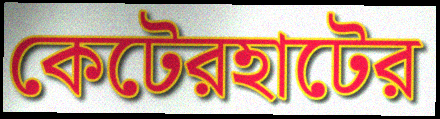
কেটেরহাটের